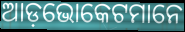
ଆଡ଼ଭୋକେଟମାନେ